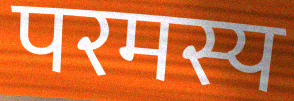
परमस्य